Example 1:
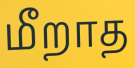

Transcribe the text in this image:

மீறாத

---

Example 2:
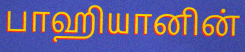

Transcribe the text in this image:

பாஹியானின்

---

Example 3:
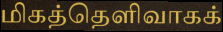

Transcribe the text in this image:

மிகத்தெளிவாகக்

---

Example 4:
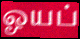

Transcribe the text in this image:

ஓயப்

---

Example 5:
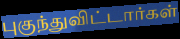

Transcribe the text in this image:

புகுந்துவிட்டார்கள்